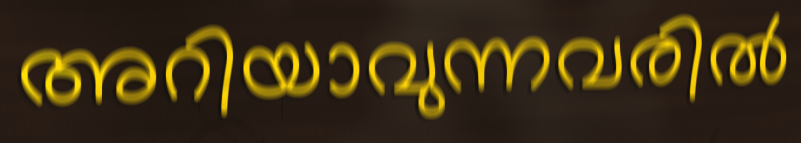
അറിയാവുന്നവരിൽ